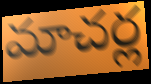
మాచర్ల